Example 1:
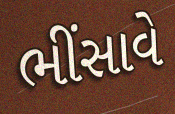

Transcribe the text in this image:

ભીંસાવે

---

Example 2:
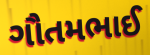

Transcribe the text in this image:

ગૌતમભાઈ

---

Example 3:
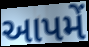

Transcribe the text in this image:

આપમેં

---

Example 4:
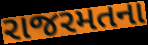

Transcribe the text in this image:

રાજરમતના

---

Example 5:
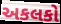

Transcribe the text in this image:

અકલકો